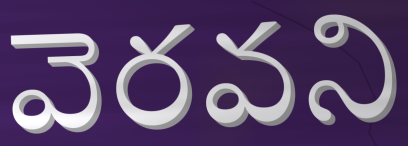
వెరవని